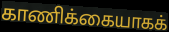
காணிக்கையாகக்